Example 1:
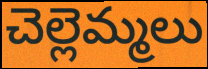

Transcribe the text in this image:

చెల్లెమ్మలు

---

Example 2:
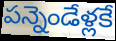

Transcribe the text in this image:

పన్నెండేళ్లకే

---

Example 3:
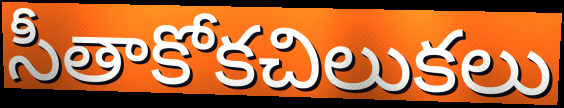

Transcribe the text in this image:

సీతాకోకచిలుకలు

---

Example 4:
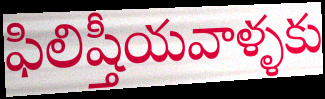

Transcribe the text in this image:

ఫిలిష్తీయవాళ్ళకు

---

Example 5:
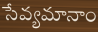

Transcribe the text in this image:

సేవ్యమానాం